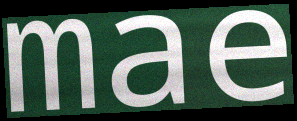
mae